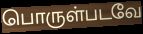
பொருள்படவே